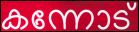
കന്നോട്